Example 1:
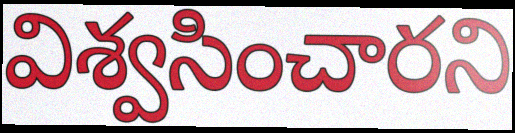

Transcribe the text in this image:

విశ్వసించారని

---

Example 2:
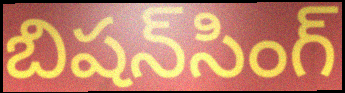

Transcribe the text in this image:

బిషన్‌సింగ్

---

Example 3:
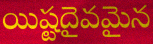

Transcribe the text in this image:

యిష్టదైవమైన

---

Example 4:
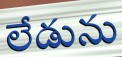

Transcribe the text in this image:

లేడును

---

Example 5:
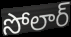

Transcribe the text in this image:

సోలార్